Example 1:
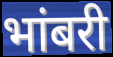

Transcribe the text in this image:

भांबरी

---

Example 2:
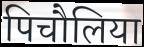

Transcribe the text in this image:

पिचौलिया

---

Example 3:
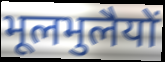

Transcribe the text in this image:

भूलभुलैयों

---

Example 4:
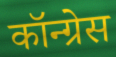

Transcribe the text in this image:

कॉन्ग्रेस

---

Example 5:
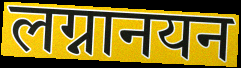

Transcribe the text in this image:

लग्नानयन